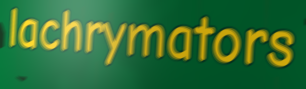
lachrymators